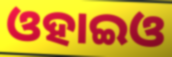
ଓହାଇଓ